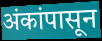
अंकांपासून